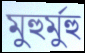
মুহুর্মুহু